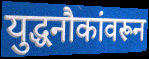
युद्धनौकांवरून